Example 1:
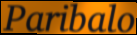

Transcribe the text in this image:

Paribalo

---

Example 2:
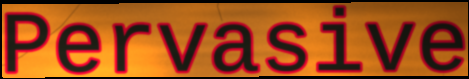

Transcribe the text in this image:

Pervasive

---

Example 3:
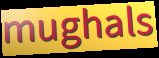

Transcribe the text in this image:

mughals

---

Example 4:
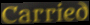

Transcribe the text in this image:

Carried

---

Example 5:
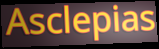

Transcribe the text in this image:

Asclepias